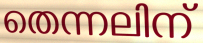
തെന്നലിന്